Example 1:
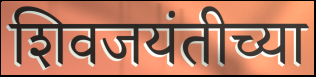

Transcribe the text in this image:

शिवजयंतीच्या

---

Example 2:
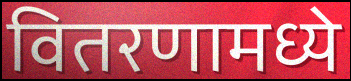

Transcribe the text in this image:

वितरणामध्ये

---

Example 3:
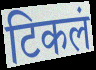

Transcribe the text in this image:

टिकलं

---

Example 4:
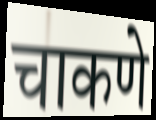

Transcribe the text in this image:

चाकणे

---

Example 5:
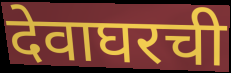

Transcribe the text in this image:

देवाघरची